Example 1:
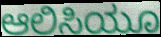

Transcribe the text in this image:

ಆಲಿಸಿಯೂ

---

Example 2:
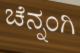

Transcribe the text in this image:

ಚೆನ್ನಂಗಿ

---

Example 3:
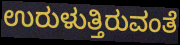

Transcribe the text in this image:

ಉರುಳುತ್ತಿರುವಂತೆ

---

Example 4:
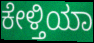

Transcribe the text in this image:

ಕೇಳ್ತಿಯಾ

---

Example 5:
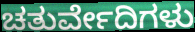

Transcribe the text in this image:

ಚತುರ್ವೇದಿಗಳು